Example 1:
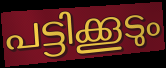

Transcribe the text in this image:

പട്ടിക്കൂടും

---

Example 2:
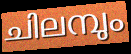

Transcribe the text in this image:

ചിലമ്പും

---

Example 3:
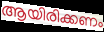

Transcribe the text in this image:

ആയിരിക്കണം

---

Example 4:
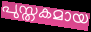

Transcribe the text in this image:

പുസ്തകമായ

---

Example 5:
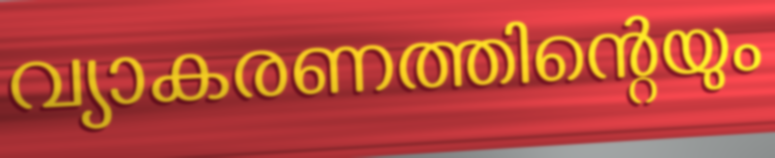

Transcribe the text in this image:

വ്യാകരണത്തിന്റെയും